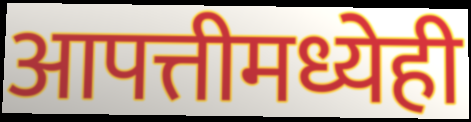
आपत्तीमध्येही